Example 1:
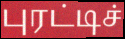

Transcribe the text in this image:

புரட்டிச்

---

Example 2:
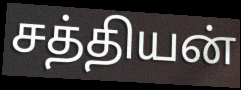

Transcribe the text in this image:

சத்தியன்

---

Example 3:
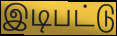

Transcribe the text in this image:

இடிபட்டு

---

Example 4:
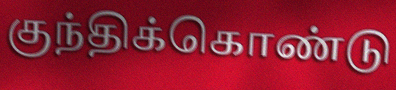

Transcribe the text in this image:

குந்திக்கொண்டு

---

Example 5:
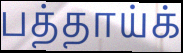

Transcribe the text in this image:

பத்தாய்க்